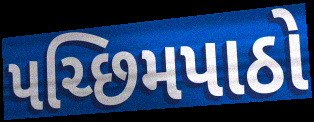
પચ્છિમપાઠો